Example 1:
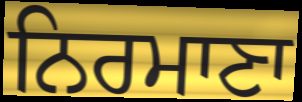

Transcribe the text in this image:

ਨਿਰਮਾਣਾ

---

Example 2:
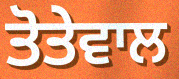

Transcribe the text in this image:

ਤੋਤੇਵਾਲ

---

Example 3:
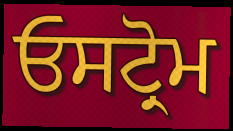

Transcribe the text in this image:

ਓਸਟ੍ਰੋਮ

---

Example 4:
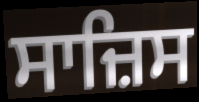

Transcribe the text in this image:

ਸਾਜ਼ਿਸ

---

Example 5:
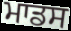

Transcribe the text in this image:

ਮਾਡਸ